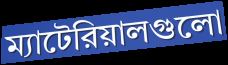
ম্যাটেরিয়ালগুলো